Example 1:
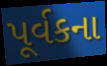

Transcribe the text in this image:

પૂર્વકના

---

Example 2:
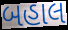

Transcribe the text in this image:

બહાલ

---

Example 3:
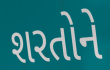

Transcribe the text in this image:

શરતોને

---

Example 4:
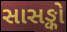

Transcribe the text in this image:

સાસઙ્કો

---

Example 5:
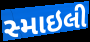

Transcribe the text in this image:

સ્માઇલી